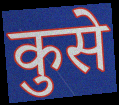
कुसे